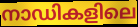
നാഡികളിലെ